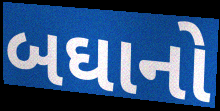
બઘાનો